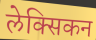
लेक्सिकन